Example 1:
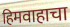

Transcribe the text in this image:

हिमवाहाचा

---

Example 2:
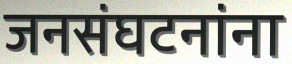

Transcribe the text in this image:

जनसंघटनांना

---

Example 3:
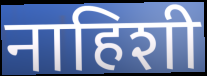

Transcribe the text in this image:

नाहिशी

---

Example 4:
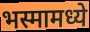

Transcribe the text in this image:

भस्मामध्ये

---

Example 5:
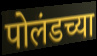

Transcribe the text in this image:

पोलंडच्या